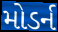
મોડર્ન